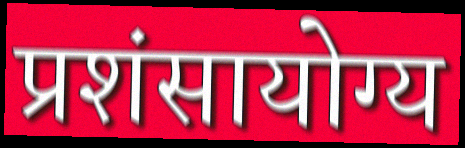
प्रशंसायोग्य